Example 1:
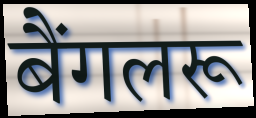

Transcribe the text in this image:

बैंगलरू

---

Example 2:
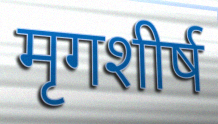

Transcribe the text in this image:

मृगशीर्ष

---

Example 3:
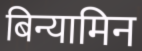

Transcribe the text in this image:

बिन्यामिन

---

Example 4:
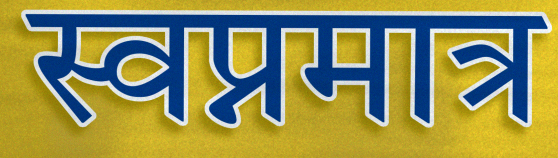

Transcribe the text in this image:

स्वप्नमात्र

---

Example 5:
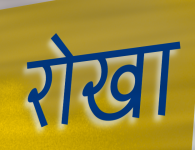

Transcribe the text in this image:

रोखा